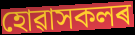
হোৱাসকলৰ